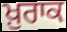
ਖ਼ੁਰਾਕ